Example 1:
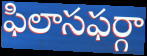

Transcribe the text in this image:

ఫిలాసఫర్గా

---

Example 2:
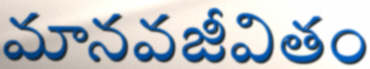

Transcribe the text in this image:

మానవజీవితం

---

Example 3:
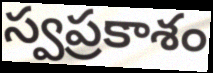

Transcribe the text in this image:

స్వప్రకాశం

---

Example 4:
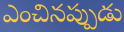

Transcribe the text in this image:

ఎంచినప్పుడు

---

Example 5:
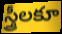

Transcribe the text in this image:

స్త్రీలకూ